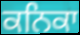
ਕਨਿਕਾ